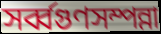
সর্ব্বগুণসম্পন্না